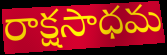
రాక్షసాధమ